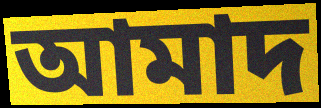
আমাদ